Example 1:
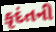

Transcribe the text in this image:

કૃદંતની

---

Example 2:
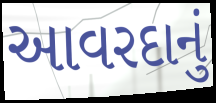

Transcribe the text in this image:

આવરદાનું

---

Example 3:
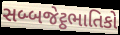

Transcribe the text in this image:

સબ્બજેટ્ઠભાતિકો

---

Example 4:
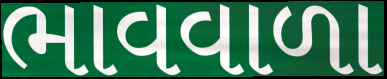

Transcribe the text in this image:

ભાવવાળા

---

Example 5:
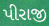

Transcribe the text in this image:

પીરાજી